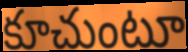
కూచుంటూ